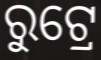
ରୁଟ୍ରେ